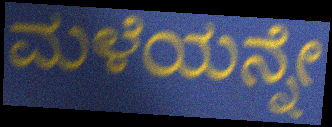
ಮಳೆಯನ್ನೇ